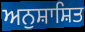
ਅਨੁਸ਼ਾਸ਼ਿਤ